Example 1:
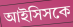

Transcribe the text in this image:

আইসিসকে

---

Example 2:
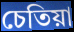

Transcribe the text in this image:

চেতিয়া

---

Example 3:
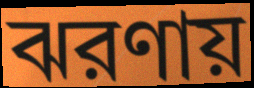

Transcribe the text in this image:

ঝরণায়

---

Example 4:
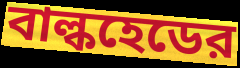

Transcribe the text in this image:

বাল্কহেডের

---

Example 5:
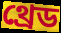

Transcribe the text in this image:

থ্রেড